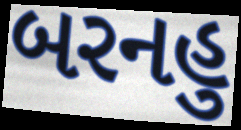
બરનહુ